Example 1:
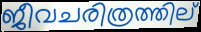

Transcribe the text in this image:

ജീവചരിത്രത്തില്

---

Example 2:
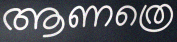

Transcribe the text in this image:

ആണത്രെ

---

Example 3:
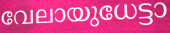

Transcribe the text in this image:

വേലായുധേട്ടാ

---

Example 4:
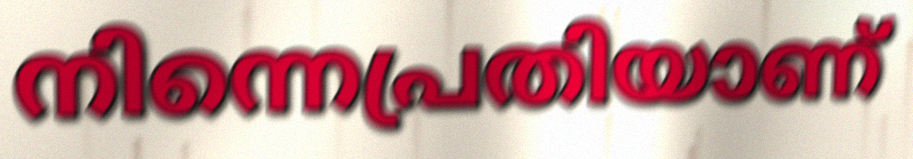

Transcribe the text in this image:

നിന്നെപ്രതിയാണ്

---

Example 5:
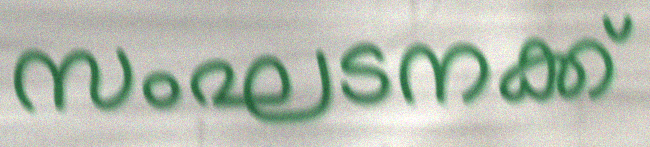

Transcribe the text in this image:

സംഘടനക്ക്